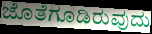
ಜೊತೆಗೂಡಿರುವುದು